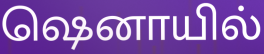
ஷெனாயில்